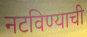
नटविण्याची